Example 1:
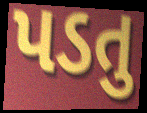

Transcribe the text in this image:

પડતુ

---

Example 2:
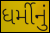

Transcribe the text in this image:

ધર્મીનું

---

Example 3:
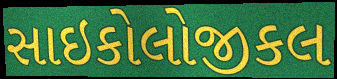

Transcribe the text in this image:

સાઇકોલોજીકલ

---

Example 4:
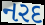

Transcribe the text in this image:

નરદ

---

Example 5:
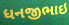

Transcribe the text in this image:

ધનજીભાઇ